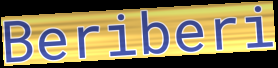
Beriberi